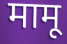
मामू